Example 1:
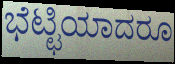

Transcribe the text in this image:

ಭೆಟ್ಟಿಯಾದರೂ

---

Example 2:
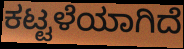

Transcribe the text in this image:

ಕಟ್ಟಳೆಯಾಗಿದೆ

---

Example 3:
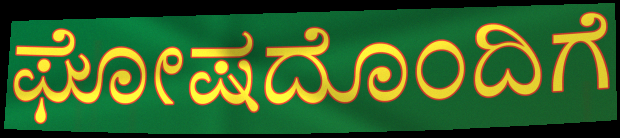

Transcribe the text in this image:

ಘೋಷದೊಂದಿಗೆ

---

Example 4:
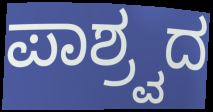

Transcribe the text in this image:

ಪಾಶ್ರ್ವದ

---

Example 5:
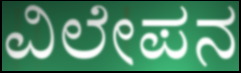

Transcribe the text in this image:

ವಿಲೇಪನ